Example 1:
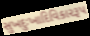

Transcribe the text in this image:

સુખદુઃખાદિવિકારરૂપ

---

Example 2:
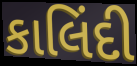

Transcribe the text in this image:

કાલિંદી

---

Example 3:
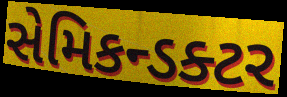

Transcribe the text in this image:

સેમિકન્ડક્ટર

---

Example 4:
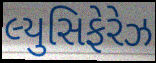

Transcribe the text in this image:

લ્યુસિફેરેઝ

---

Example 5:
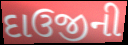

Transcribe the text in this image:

દાઉજીની